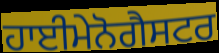
ਹਾਈਮੇਨੋਗੈਸਟਰ